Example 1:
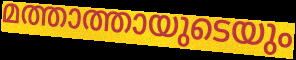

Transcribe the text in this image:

മത്താത്തായുടെയും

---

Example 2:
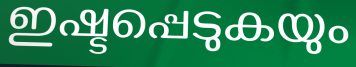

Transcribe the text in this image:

ഇഷ്ടപ്പെടുകയും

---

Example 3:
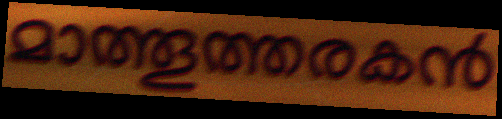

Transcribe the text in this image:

മാത്തൂത്തരകൻ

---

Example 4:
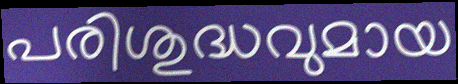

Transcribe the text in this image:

പരിശുദ്ധവുമായ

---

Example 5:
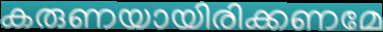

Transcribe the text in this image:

കരുണയായിരിക്കണമേ